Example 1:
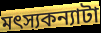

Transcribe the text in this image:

মৎস্যকন্যাটা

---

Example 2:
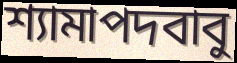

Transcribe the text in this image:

শ্যামাপদবাবু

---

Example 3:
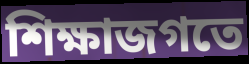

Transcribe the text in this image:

শিক্ষাজগতে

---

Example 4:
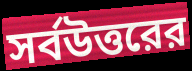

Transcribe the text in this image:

সর্বউত্তরের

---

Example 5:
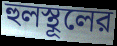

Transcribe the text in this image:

হুলস্থূলের